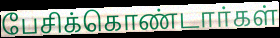
பேசிக்கொண்டார்கள்